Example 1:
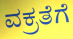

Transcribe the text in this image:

ವಕ್ರತೆಗೆ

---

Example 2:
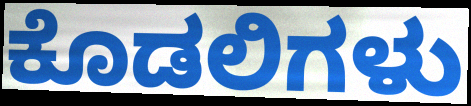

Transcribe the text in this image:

ಕೊಡಲಿಗಳು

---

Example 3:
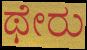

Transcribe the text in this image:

ಥೇರು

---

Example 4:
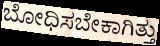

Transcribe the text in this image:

ಬೋಧಿಸಬೇಕಾಗಿತ್ತು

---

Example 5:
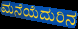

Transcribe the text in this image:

ಮನೆಯೆದುರಿನ